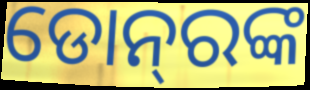
ଡୋନ୍‌ରଙ୍କ